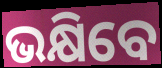
ଭକ୍ଷିବେ